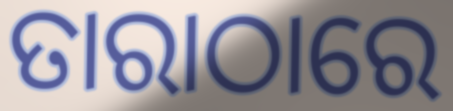
ତାରାଠାରେ